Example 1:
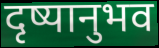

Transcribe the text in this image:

दृष्यानुभव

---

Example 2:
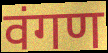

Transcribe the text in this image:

वंगण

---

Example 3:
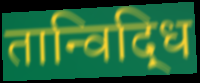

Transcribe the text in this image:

तान्विद्धि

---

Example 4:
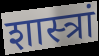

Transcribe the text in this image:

शास्त्रां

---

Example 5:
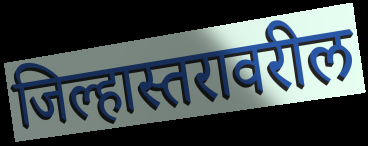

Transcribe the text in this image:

जिल्हास्तरावरील